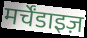
मर्चेंडाइज़